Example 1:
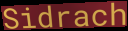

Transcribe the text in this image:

Sidrach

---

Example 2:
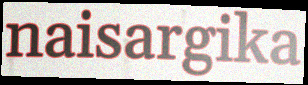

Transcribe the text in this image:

naisargika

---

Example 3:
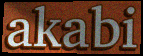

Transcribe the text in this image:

akabi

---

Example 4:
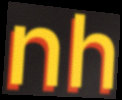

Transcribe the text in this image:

nh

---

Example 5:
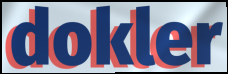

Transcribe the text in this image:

dokler